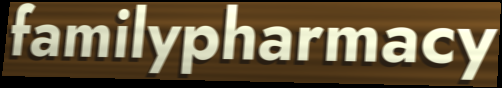
familypharmacy